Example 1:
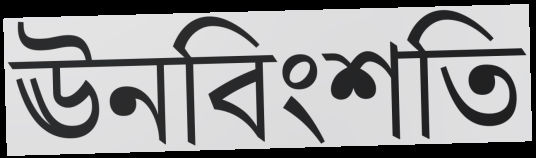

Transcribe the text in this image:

ঊনবিংশতি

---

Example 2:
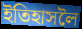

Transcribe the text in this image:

ইতিহাসলৈ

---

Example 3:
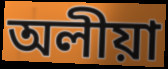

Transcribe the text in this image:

অলীয়া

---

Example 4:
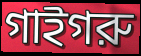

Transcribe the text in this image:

গাইগৰু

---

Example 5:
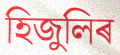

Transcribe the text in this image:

হিজুলিৰ